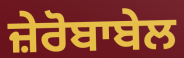
ਜ਼ੇਰੋਬਾਬੇਲ